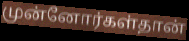
முன்னோர்கள்தான்